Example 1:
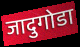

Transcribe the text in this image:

जादुगोडा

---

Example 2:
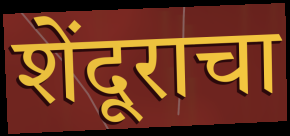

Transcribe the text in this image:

शेंदूराचा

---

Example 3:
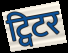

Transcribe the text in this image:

ट्विटर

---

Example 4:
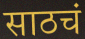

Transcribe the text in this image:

साठचं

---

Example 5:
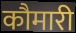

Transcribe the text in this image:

कौमारी